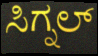
ಸಿಗ್ನಲ್